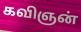
கவிஞன்